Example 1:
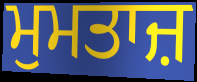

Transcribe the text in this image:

ਮੁਮਤਾਜ਼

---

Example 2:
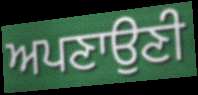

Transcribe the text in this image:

ਅਪਣਾਉਣੀ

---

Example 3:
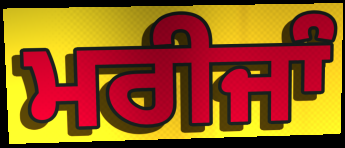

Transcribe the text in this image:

ਮਰੀਜਾੰ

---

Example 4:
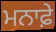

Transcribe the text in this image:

ਮਨਾਫ਼ੇ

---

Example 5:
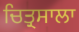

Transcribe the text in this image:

ਚਿਤ੍ਰਸਾਲਾ